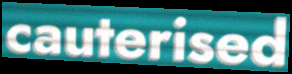
cauterised